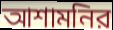
আশামনির